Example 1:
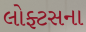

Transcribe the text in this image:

લોફ્ટસના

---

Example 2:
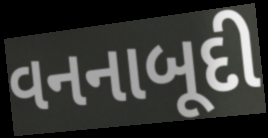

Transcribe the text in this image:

વનનાબૂદી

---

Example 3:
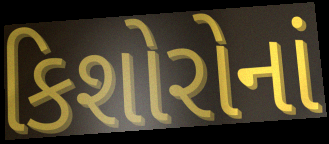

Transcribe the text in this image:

કિશોરોનાં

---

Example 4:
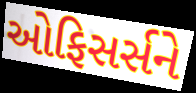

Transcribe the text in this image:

ઓફિસર્સને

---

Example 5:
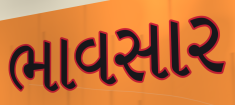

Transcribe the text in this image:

ભાવસાર